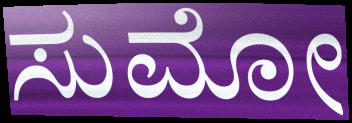
ಸುಮೋ